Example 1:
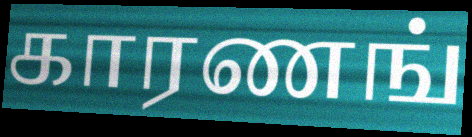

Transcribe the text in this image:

காரணங்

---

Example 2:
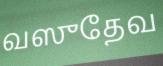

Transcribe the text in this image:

வஸுதேவ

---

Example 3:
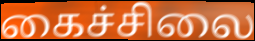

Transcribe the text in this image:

கைச்சிலை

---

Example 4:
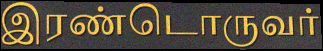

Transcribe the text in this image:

இரண்டொருவர்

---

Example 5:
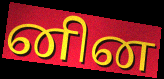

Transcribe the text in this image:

னின